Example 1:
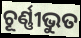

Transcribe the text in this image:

ଚୂର୍ଣ୍ଣୀଭୁତ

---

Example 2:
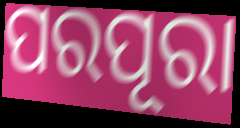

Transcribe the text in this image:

ପରପୂରା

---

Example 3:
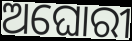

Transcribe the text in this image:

ଅଘୋରୀ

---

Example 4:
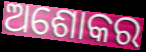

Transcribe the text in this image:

ଅଶୋକର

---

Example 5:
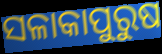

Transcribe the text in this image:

ସଳାକାପୁରୁଷ